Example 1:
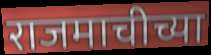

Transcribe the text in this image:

राजमाचीच्या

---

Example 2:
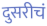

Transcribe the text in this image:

दुसरीचं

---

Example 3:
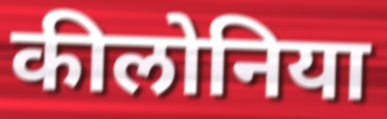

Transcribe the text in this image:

कीलोनिया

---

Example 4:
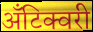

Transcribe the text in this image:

अँटिक्वरी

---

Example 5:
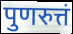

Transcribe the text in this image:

पुणरुत्तं